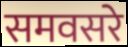
समवसरे